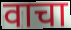
वाचा